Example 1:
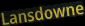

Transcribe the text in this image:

Lansdowne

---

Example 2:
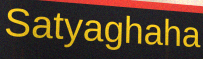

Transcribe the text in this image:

Satyaghaha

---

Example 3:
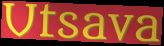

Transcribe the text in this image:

Utsava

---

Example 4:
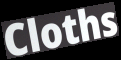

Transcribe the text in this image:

Cloths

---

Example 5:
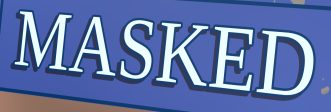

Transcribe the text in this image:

MASKED